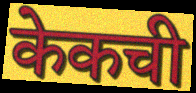
केकची